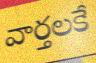
వార్తలకే